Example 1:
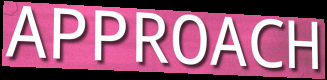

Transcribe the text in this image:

APPROACH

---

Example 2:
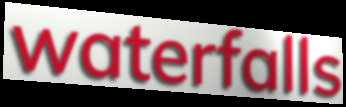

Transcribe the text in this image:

waterfalls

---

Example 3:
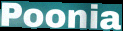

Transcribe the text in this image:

Poonia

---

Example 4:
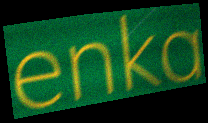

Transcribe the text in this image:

enka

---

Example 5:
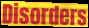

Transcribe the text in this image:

Disorders